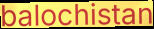
balochistan